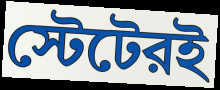
স্টেটেরই